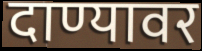
दाण्यावर